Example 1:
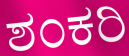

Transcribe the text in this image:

ಶಂಕರಿ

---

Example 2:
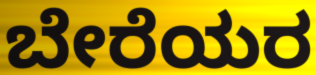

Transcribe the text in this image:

ಬೇರೆಯರ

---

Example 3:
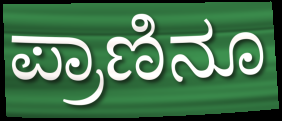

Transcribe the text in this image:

ಪ್ರಾಣಿನೂ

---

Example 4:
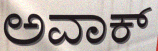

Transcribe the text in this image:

ಅವಾಕ್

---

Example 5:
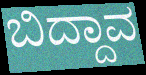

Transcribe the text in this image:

ಬಿದ್ದಾವ